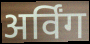
अर्विंग